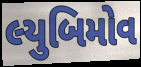
લ્યુબિમોવ